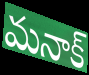
మనాక్